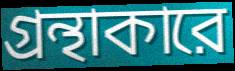
গ্রন্থাকারে